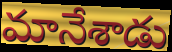
మానేశాడు